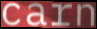
carn